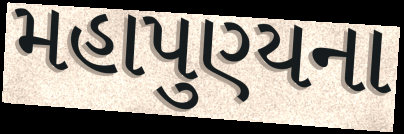
મહાપુણ્યના